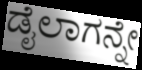
ಡೈಲಾಗನ್ನೇ